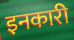
इनकारी